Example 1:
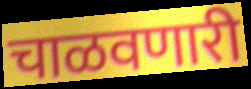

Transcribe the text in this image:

चाळवणारी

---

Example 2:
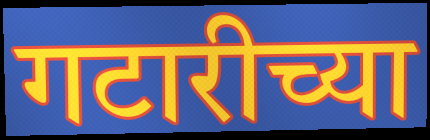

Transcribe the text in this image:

गटारीच्या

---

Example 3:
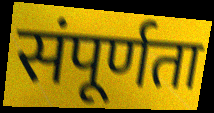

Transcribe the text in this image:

संपूर्णता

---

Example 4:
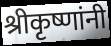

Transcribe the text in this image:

श्रीकृष्णांनी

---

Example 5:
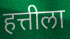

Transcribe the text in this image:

हत्तीला